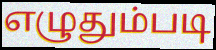
எழுதும்படி